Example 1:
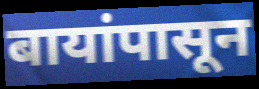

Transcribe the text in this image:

बायांपासून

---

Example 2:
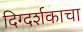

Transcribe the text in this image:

दिग्दर्शकाचा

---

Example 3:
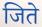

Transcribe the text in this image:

जिते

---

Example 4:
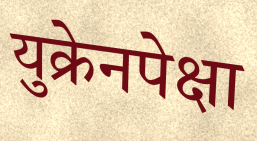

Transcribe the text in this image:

युक्रेनपेक्षा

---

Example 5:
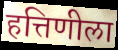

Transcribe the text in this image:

हत्तिणीला